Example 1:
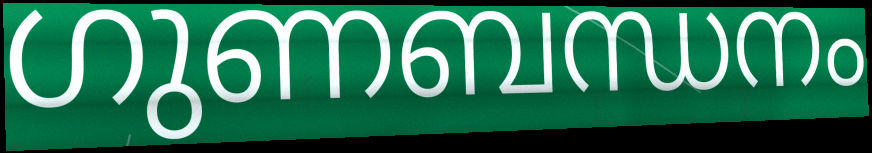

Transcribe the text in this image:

ഗുണബന്ധനം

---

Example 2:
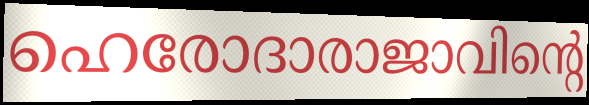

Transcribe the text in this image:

ഹെരോദാരാജാവിന്റെ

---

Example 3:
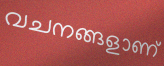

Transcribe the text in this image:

വചനങ്ങളാണ്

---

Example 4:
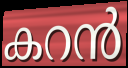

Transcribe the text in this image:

കറൻ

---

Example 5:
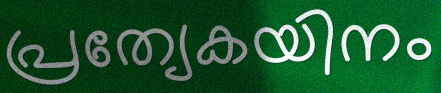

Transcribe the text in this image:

പ്രത്യേകയിനം